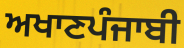
ਅਖਾਣਪੰਜਾਬੀ